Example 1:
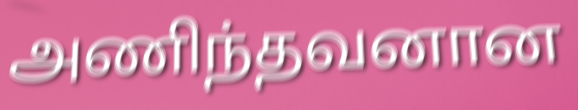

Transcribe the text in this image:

அணிந்தவனான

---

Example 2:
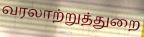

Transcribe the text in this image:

வரலாற்றுத்துறை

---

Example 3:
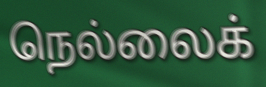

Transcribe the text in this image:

நெல்லைக்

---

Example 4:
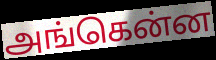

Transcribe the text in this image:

அங்கென்ன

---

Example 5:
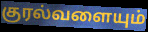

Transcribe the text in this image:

குரல்வளையும்